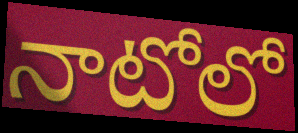
నాటోలో